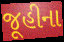
જૂહીના